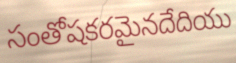
సంతోషకరమైనదేదియు